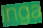
inga